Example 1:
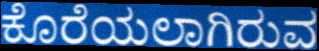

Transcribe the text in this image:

ಕೊರೆಯಲಾಗಿರುವ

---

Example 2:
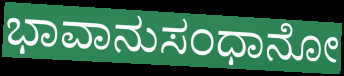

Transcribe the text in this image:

ಭಾವಾನುಸಂಧಾನೋ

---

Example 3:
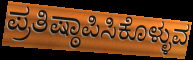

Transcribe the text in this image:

ಪ್ರತಿಷ್ಠಾಪಿಸಿಕೊಳ್ಳುವ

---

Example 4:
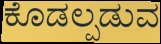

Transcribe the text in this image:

ಕೊಡಲ್ಪಡುವ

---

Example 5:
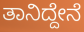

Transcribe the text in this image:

ತಾನಿದ್ದೇನೆ